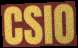
CSIO